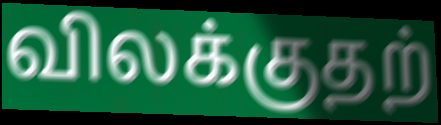
விலக்குதற்